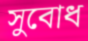
সুবোধ